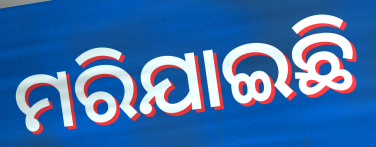
ମରିଯାଇଛି